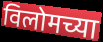
विलोमच्या